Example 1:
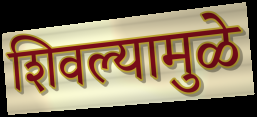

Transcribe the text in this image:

शिवल्यामुळे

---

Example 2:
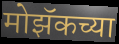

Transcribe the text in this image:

मोझॅकच्या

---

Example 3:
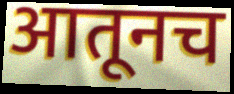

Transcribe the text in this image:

आतूनच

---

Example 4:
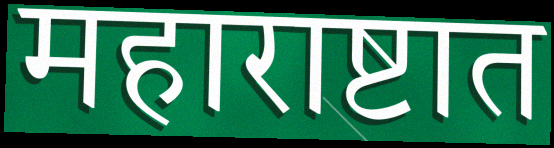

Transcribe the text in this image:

महाराष्टात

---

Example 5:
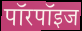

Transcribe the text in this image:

पॉरपॉइज